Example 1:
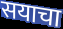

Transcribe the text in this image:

सयाचा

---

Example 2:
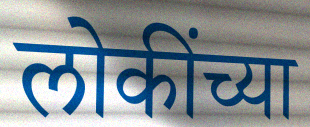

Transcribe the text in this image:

लोकींच्या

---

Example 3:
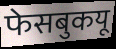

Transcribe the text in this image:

फेसबुकयू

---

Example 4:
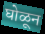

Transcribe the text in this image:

घोळून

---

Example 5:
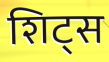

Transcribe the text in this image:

शिट्स